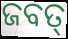
ଜବତ୍